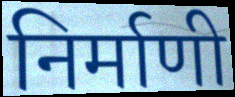
निर्माणी